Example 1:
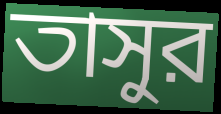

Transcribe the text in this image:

তাসুর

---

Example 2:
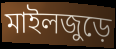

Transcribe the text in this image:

মাইলজুড়ে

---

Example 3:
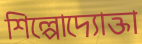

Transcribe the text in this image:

শিল্পোদ্যোক্তা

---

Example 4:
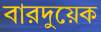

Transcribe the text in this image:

বারদুয়েক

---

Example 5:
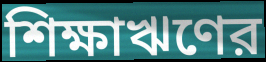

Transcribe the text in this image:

শিক্ষাঋণের